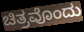
ಚಿತ್ರವೊಂದು